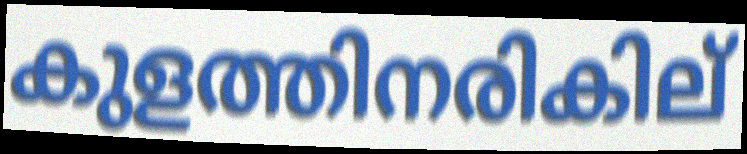
കുളത്തിനരികില്